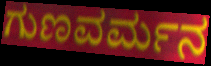
ಗುಣವರ್ಮನ